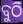
ବୁଠି